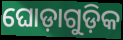
ଘୋଡ଼ାଗୁଡ଼ିକ